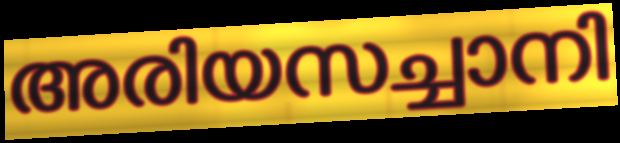
അരിയസച്ചാനി